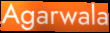
Agarwala